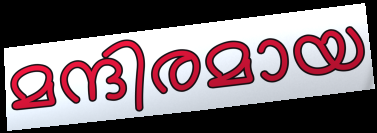
മന്ദിരമായ